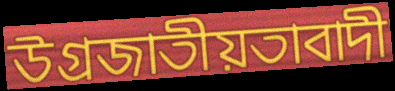
উগ্রজাতীয়তাবাদী